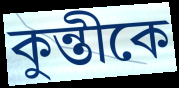
কুন্তীকে